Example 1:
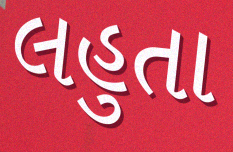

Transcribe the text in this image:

લહુતા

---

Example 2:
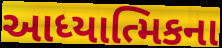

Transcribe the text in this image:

આધ્યાત્મિકના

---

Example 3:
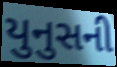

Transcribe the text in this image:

યુનુસની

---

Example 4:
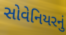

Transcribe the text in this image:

સોવેનિયરનું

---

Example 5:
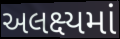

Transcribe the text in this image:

અલક્ષ્યમાં